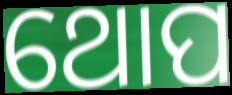
ଥୋପ